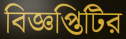
বিজ্ঞপ্তিটির